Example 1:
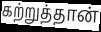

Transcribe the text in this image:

கற்றுத்தான்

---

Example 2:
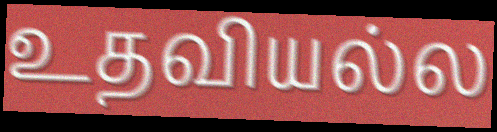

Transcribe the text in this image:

உதவியல்ல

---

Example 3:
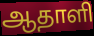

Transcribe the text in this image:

ஆதாளி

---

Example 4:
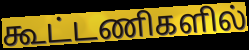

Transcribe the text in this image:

கூட்டணிகளில்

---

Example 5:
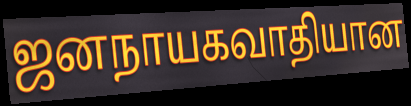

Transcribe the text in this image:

ஜனநாயகவாதியான